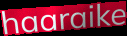
haaraike